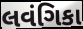
લવંગિકા